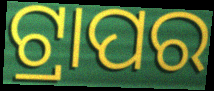
ଟ୍ରାପର